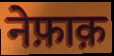
नेफ़ाक़